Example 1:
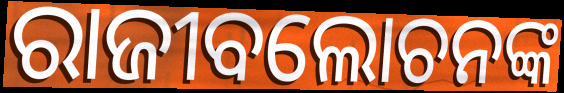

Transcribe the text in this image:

ରାଜୀବଲୋଚନଙ୍କ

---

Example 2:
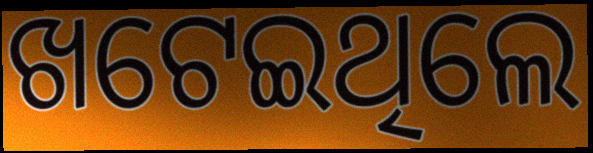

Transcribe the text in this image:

ଖଟେଇଥିଲେ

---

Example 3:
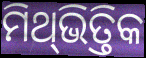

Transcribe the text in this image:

ମିଥ୍‍ଭିତ୍ତିକ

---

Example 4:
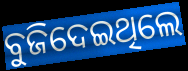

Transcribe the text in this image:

ବୁଜିଦେଇଥିଲେ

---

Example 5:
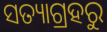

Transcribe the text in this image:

ସତ୍ୟାଗ୍ରହରୁ